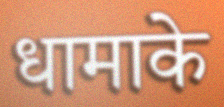
धामाके